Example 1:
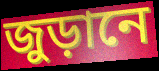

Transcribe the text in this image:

জুড়ানে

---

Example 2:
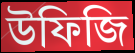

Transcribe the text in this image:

উফিজি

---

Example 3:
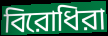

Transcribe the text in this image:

বিরোধিরা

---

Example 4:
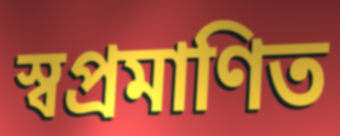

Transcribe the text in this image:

স্বপ্রমাণিত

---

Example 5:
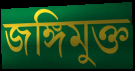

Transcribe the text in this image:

জঙ্গিমুক্ত